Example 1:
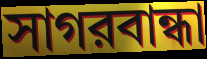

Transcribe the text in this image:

সাগরবান্ধা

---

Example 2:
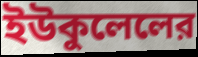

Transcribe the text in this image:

ইউকুলেলের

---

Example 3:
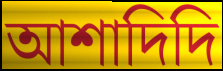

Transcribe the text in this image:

আশাদিদি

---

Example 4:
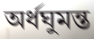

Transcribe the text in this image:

অর্ধঘুমন্ত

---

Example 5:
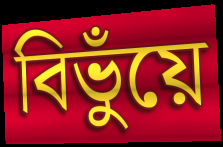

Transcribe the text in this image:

বিভুঁয়ে